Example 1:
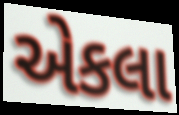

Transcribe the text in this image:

એકલા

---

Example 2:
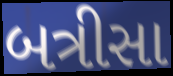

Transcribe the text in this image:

બત્રીસા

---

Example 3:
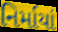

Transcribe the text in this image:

નિર્માયાં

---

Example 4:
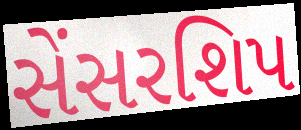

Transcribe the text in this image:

સેંસરશિપ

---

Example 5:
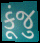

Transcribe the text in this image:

કૂંજુ